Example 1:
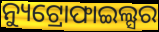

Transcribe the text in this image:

ନ୍ୟୁଟ୍ରୋଫାଇଲ୍ସର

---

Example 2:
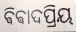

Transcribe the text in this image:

ଵିଵାଦପ୍ରିୟ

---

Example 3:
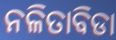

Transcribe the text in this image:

ନଳିତାବିଡା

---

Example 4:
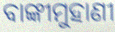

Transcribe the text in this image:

ବାଙ୍କୀମୁହାଣୀ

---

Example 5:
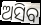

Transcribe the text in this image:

ଅସିବ